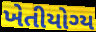
ખેતીયોગ્ય